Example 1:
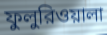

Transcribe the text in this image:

ফুলুরিওয়ালা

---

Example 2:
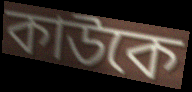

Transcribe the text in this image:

কাউকে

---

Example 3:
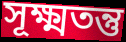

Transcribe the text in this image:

সূক্ষ্মতন্তু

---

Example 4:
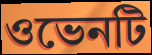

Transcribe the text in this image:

ওভেনটি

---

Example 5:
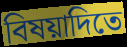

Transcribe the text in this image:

বিষয়াদিতে